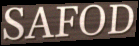
SAFOD